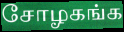
சோழகங்க